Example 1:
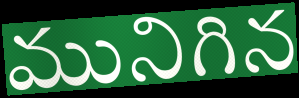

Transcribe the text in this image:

మునిగిన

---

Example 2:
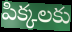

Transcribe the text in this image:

పిక్కలకు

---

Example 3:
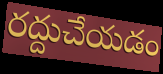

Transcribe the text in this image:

రద్దుచేయడం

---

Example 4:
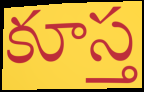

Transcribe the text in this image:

కూస్త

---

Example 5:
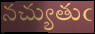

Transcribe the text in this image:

నచ్యుతుఁ